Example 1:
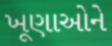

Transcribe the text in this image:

ખૂણાઓને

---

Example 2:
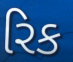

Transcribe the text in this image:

રિક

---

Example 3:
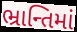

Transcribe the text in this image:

ભ્રાન્તિમાં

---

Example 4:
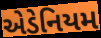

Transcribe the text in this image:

એડેનિયમ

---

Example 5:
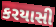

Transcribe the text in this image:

કરયાસી